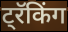
ट्रॅकिंग